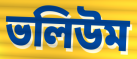
ভলিউম